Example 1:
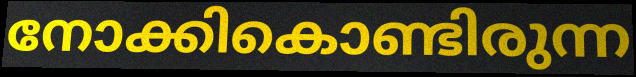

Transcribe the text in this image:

നോക്കികൊണ്ടിരുന്ന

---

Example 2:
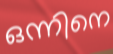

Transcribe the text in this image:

ഒന്നിനെ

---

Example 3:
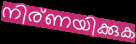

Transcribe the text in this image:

നിര്ണയിക്കുക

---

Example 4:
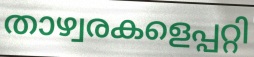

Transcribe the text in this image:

താഴ്വരകളെപ്പറ്റി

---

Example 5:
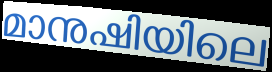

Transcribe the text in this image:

മാനുഷിയിലെ